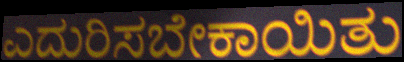
ಎದುರಿಸಬೇಕಾಯಿತು